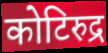
कोटिरुद्र